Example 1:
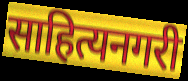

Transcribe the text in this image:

साहित्यनगरी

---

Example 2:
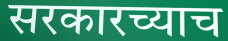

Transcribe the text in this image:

सरकारच्याच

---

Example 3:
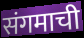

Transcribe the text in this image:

संगमाची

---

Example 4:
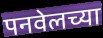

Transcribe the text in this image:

पनवेलच्या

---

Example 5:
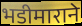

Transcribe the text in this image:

भडीमाराने